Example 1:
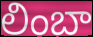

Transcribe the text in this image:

లింబా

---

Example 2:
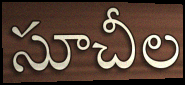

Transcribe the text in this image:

సూచీల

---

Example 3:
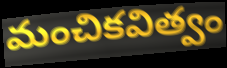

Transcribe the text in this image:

మంచికవిత్వం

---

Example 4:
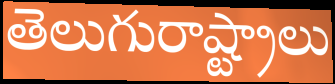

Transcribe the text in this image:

తెలుగురాష్ట్రాలు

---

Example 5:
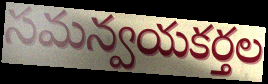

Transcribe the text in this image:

సమన్వయకర్తల